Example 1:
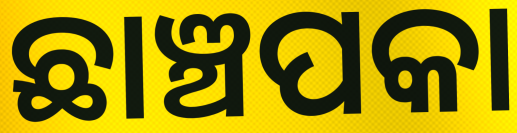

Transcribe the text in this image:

ଛାଞ୍ଚପକା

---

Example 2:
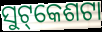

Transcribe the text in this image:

ସୁଟ୍‌କେଶଟା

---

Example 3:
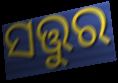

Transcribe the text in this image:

ସତ୍ତୁର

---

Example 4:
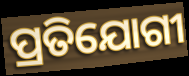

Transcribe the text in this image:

ପ୍ରତିଯୋଗୀ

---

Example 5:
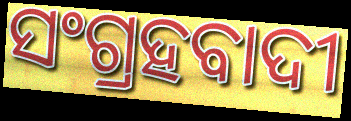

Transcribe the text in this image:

ସଂଗ୍ରହବାଦୀ